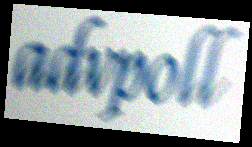
advpoll